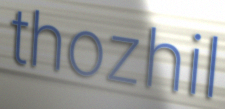
thozhil